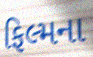
ફિલ્મના